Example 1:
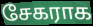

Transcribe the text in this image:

சேகராக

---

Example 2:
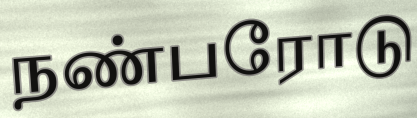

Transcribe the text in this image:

நண்பரோடு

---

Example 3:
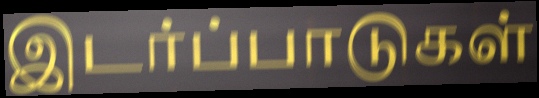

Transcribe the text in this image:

இடர்ப்பாடுகள்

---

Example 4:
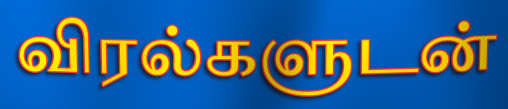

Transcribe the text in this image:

விரல்களுடன்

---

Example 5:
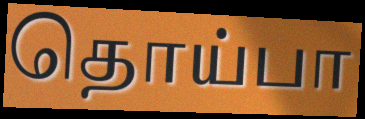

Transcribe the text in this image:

தொய்பா